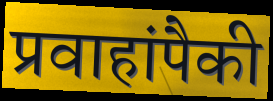
प्रवाहांपैकी